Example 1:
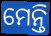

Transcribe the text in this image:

ମେନ୍ତି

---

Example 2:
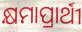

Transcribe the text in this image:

କ୍ଷମାପ୍ରାର୍ଥୀ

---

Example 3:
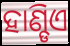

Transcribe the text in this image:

ହାଣ୍ଡିଏ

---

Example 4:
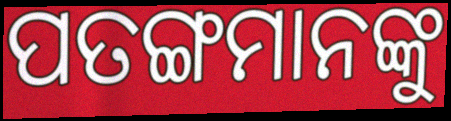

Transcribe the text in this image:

ପତଙ୍ଗମାନଙ୍କୁ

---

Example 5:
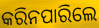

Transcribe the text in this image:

କରିନପାରିଲେ